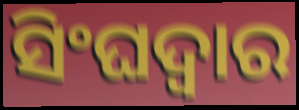
ସିଂଘଦ୍ୱାର